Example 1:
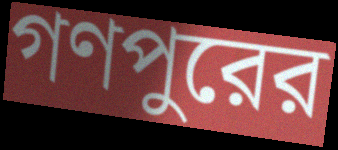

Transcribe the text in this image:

গণপুরের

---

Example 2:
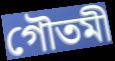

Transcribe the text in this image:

গৌতমী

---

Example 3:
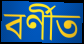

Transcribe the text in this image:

বর্ণীত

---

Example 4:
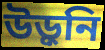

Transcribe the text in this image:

উড়ুনি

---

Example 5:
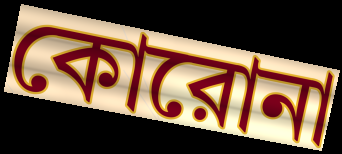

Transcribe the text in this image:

কোরোনা